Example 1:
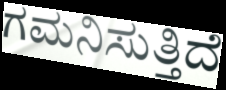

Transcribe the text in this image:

ಗಮನಿಸುತ್ತಿದೆ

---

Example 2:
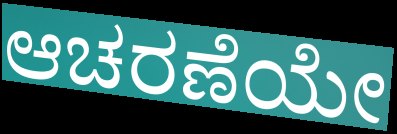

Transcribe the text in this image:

ಆಚರಣೆಯೇ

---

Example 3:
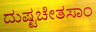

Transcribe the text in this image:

ದುಷ್ಟಚೇತಸಾಂ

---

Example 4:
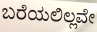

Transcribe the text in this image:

ಬರೆಯಲಿಲ್ಲವೇ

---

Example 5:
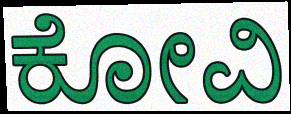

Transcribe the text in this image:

ಕೋವಿ